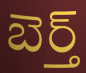
బెర్త్